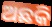
ଅଛକି